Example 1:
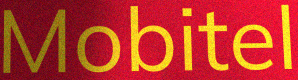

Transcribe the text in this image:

Mobitel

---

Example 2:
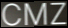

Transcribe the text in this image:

CMZ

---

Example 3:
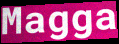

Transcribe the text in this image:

Magga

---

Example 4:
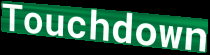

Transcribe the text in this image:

Touchdown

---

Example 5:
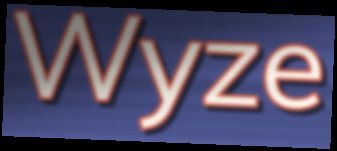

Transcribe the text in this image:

Wyze